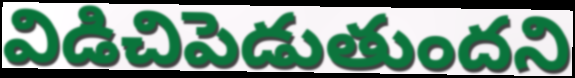
విడిచిపెడుతుందని